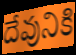
దేవునికి